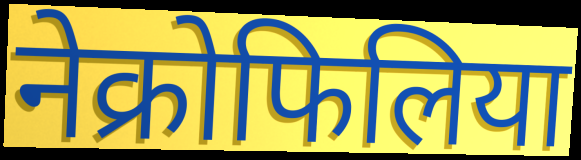
नेक्रोफिलिया